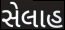
સેલાહ